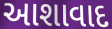
આશાવાદ